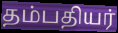
தம்பதியர்